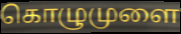
கொழுமுளை